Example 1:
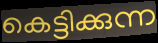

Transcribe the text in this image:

കെട്ടിക്കുന്ന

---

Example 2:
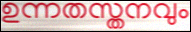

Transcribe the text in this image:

ഉന്നതസ്തനവും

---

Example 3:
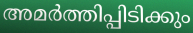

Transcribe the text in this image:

അമർത്തിപ്പിടിക്കും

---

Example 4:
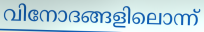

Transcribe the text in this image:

വിനോദങ്ങളിലൊന്ന്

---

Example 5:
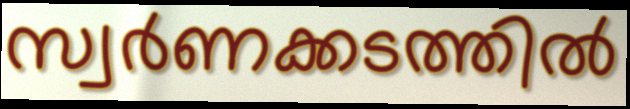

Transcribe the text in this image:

സ്വർണക്കടത്തിൽ